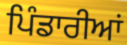
ਪਿੰਡਾਰੀਆਂ